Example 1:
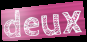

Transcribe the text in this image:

deux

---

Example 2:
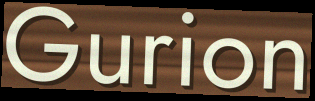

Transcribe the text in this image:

Gurion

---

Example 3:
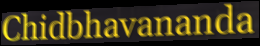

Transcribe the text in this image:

Chidbhavananda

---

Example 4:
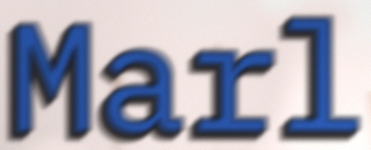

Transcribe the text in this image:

Marl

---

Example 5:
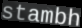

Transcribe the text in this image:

stambh